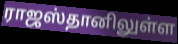
ராஜஸ்தானிலுள்ள